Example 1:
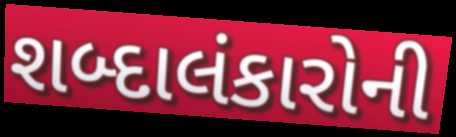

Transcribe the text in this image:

શબ્દાલંકારોની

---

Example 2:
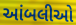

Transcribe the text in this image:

આંબલીઓ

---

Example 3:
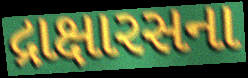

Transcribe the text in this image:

દ્રાક્ષારસના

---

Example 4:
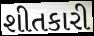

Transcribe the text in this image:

શીતકારી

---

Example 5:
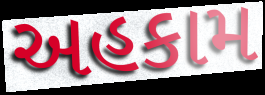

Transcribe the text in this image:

અહકામ